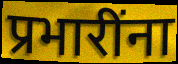
प्रभारींना